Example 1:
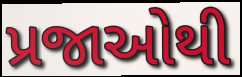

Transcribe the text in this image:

પ્રજાઓથી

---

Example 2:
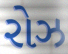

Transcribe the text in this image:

રોઝ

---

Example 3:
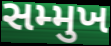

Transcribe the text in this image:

સમ્મુખ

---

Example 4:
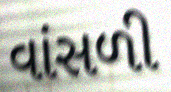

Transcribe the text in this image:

વાંસળી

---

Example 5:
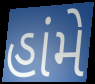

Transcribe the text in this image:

હાંમે